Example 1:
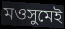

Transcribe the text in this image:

মওসুমেই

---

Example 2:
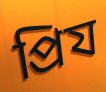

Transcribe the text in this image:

প্রিয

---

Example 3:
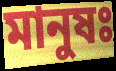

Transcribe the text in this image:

মানুষঃ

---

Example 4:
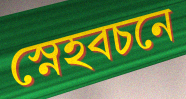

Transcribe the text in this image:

স্নেহবচনে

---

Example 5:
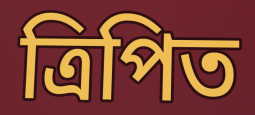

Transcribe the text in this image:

ত্রিপিত